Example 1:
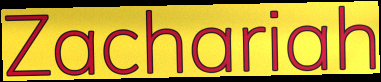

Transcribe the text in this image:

Zachariah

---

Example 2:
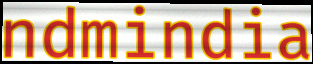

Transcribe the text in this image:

ndmindia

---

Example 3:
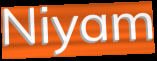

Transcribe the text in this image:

Niyam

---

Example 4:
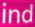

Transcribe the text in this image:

ind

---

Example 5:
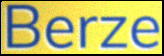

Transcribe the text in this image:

Berze